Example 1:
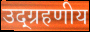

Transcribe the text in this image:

उद्ग्रहणीय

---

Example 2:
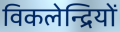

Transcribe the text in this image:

विकलेन्द्रियों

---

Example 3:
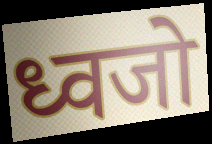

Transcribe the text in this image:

ध्वजो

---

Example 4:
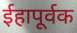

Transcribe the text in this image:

ईहापूर्वक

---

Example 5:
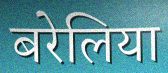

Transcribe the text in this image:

बरेलिया